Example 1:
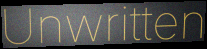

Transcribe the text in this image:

Unwritten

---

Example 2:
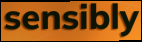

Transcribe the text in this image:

sensibly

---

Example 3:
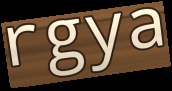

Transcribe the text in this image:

rgya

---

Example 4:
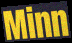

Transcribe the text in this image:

Minn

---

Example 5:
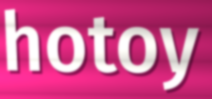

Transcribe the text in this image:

hotoy